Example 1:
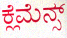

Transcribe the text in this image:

ಕ್ಲೆಮೆನ್ಸ್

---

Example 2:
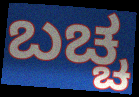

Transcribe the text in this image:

ಬಚ್ಚ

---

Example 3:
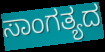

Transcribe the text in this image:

ಸಾಂಗತ್ಯದ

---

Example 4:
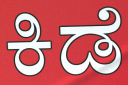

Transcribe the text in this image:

ಕಿಡೆ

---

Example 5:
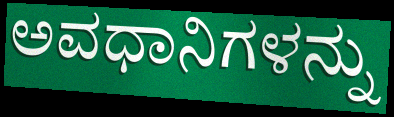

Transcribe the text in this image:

ಅವಧಾನಿಗಳನ್ನು